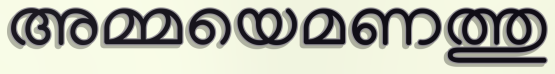
അമ്മയെമണത്തു